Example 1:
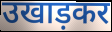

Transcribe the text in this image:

उखाड़कर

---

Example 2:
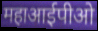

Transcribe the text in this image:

महाआईपीओ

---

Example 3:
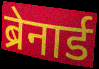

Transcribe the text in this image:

ब्रेनार्ड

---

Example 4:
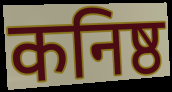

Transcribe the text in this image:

कनिष्ठ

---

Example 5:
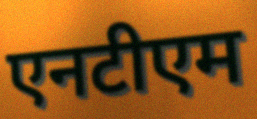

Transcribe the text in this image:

एनटीएम